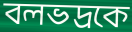
বলভদ্রকে